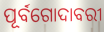
ପୂର୍ବଗୋଦାବରୀ